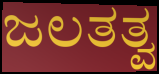
ಜಲತತ್ವ